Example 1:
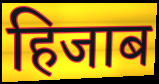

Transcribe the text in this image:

हिजाब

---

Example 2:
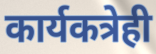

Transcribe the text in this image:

कार्यकत्रेही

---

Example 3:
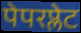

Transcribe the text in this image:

पेपरप्लेट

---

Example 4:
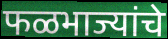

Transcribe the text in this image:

फळभाज्यांचे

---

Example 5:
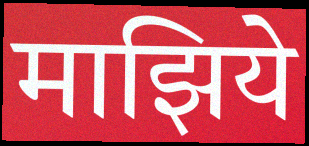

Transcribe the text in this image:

माझिये